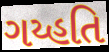
ગય્હતિ